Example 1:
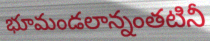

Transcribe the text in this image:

భూమండలాన్నంతటినీ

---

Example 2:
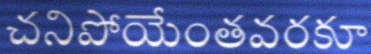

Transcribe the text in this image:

చనిపోయేంతవరకూ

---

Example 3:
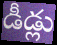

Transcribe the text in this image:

డీడ్లు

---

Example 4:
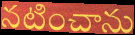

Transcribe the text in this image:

నటించాను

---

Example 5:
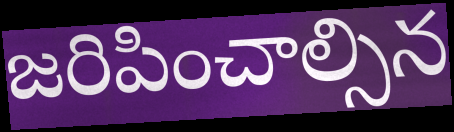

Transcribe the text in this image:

జరిపించాల్సిన